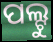
ପଲ୍ଟୁ